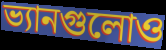
ভ্যানগুলোও